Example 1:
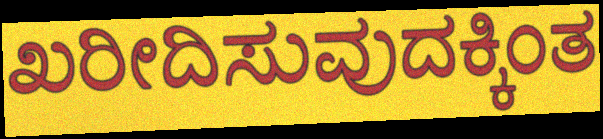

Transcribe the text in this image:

ಖರೀದಿಸುವುದಕ್ಕಿಂತ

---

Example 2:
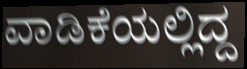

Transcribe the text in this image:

ವಾಡಿಕೆಯಲ್ಲಿದ್ದ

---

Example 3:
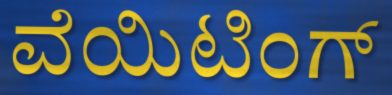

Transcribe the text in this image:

ವೆಯಿಟಿಂಗ್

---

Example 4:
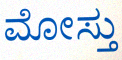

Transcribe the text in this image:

ಮೋಸ್ತು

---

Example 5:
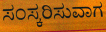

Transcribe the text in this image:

ಸಂಸ್ಕರಿಸುವಾಗ